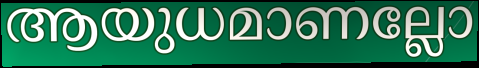
ആയുധമാണല്ലോ